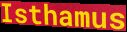
Isthamus